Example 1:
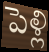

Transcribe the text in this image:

పెళ్లి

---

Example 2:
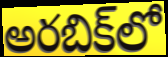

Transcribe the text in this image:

అరబిక్‌లో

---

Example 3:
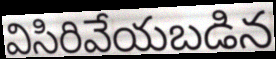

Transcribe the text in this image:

విసిరివేయబడిన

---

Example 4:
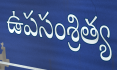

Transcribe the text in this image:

ఉపసంశ్రిత్య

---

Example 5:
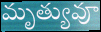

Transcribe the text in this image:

మృత్యువూ